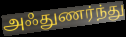
அஃதுணர்ந்து